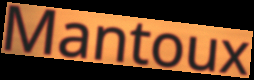
Mantoux